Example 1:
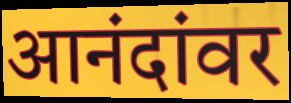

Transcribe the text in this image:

आनंदांवर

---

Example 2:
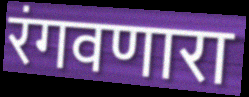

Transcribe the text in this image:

रंगवणारा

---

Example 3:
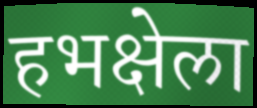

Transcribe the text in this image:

हभक्षेला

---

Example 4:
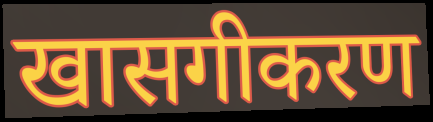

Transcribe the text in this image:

खासगीकरण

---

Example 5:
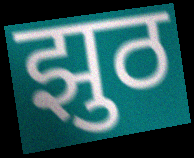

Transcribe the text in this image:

झुठ